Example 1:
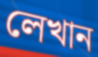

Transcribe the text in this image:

লেখান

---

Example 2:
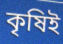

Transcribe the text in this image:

কৃষিই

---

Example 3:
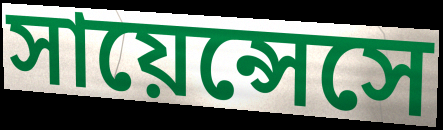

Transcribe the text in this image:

সায়েন্সেসে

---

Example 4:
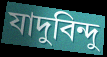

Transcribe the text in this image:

যাদুবিন্দু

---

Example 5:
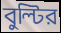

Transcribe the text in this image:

বুল্টির